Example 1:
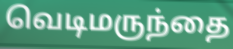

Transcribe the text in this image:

வெடிமருந்தை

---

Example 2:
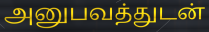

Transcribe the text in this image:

அனுபவத்துடன்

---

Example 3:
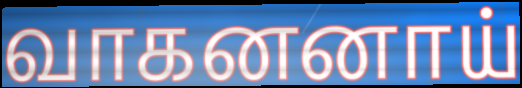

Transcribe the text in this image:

வாகனனாய்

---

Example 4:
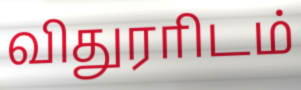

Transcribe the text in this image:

விதுரரிடம்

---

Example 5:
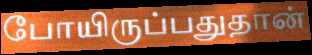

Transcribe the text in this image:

போயிருப்பதுதான்